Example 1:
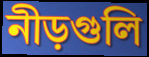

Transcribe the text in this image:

নীড়গুলি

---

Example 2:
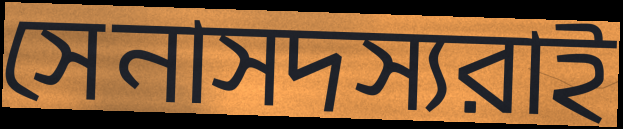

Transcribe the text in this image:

সেনাসদস্যরাই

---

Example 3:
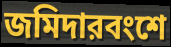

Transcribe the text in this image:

জমিদারবংশে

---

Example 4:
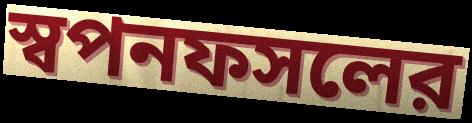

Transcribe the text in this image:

স্বপনফসলের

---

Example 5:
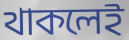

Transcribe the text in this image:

থাকলেই